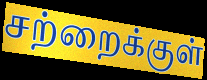
சற்றைக்குள்